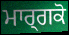
ਮਾਰ੍ਗਕੋ